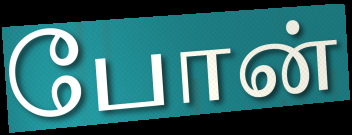
போன்